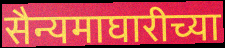
सैन्यमाघारीच्या